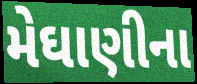
મેઘાણીના